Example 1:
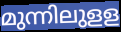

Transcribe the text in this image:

മുന്നിലുളള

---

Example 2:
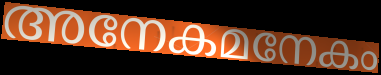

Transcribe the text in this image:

അനേകമനേകം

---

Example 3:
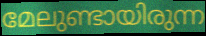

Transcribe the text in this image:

മേലുണ്ടായിരുന്ന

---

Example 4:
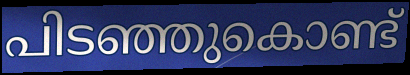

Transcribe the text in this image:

പിടഞ്ഞുകൊണ്ട്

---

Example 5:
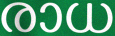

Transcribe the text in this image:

രാധ